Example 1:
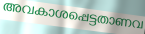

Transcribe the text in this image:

അവകാശപ്പെട്ടതാണവ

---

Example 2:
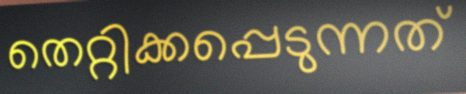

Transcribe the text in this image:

തെറ്റിക്കപ്പെടുന്നത്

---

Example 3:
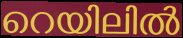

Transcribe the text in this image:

റെയിലിൽ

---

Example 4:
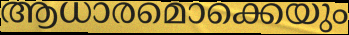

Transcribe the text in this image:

ആധാരമൊക്കെയും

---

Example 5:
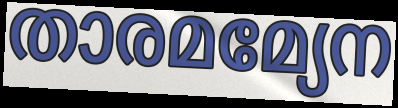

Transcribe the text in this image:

താരമമ്യേന